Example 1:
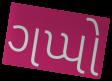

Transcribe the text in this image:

ગપ્પો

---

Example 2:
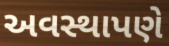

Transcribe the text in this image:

અવસ્થાપણે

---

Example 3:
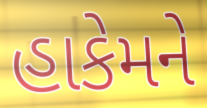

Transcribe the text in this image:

હાકેમને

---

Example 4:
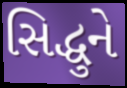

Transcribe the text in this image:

સિદ્ધુને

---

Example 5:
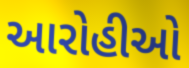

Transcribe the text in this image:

આરોહીઓ